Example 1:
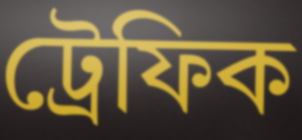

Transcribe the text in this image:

ট্ৰেফিক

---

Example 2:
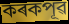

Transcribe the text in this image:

কৰকপূৱ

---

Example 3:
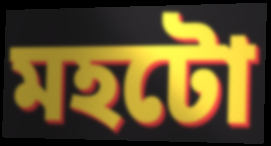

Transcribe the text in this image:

মহটো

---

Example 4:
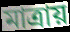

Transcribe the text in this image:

মাত্ৰায়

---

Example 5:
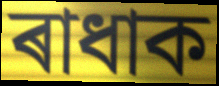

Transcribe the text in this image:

ৰাধাক